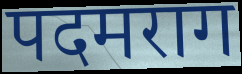
पदमराग